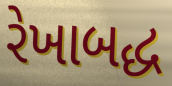
રેખાબદ્ધ